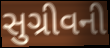
સુગ્રીવની